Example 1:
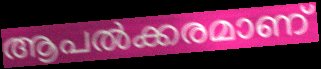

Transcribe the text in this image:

ആപൽക്കരമാണ്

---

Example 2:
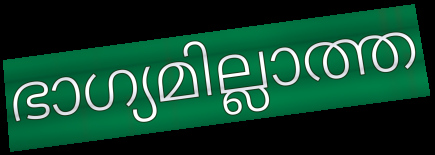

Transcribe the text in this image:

ഭാഗ്യമില്ലാത്ത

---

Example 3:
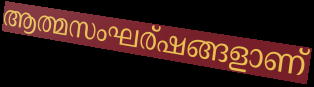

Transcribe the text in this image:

ആത്മസംഘര്ഷങ്ങളാണ്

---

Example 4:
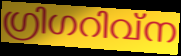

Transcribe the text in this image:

ഗ്രിഗറിവ്ന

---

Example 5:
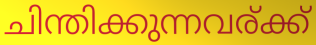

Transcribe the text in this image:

ചിന്തിക്കുന്നവര്ക്ക്